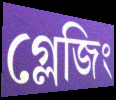
গ্লেজিং